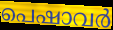
പെഷാവർ